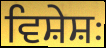
ਵਿਸ਼ੇਸ਼ਃ